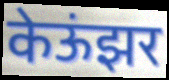
केऊंझर